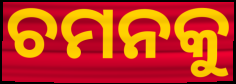
ଚମନକୁ